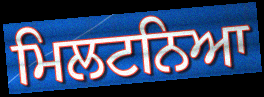
ਮਿਲਟਨਿਆ